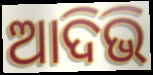
ଆଦିଭି